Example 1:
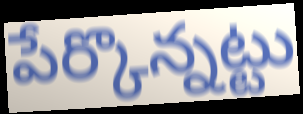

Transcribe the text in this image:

పేర్కొన్నట్టు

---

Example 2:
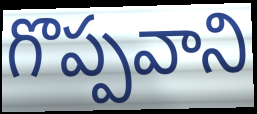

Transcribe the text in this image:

గొప్పవాని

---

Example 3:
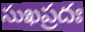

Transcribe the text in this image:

సుఖప్రదః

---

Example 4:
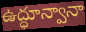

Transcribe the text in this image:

ఉద్ధూన్వానా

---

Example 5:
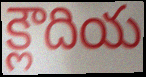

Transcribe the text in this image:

క్లౌదియ